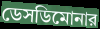
ডেসডিমোনার